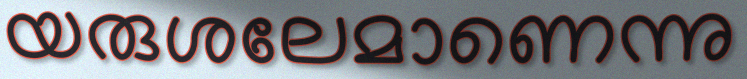
യരുശലേമാണെന്നു